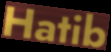
Hatib